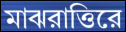
মাঝরাত্তিরে